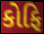
કોફિ